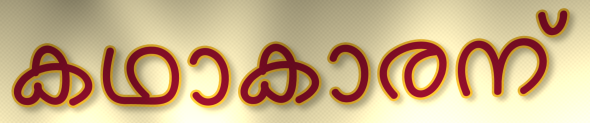
കഥാകാരന്